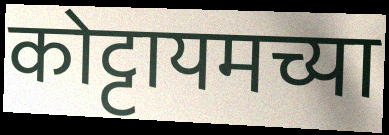
कोट्टायमच्या